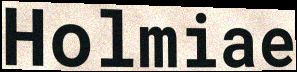
Holmiae